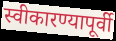
स्वीकारण्यापूर्वी